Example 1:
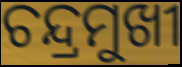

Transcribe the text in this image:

ଚନ୍ଦ୍ରମୁଖୀ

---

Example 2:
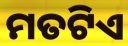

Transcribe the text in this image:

ମତଟିଏ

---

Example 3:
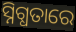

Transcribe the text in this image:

ସ୍ନିଗ୍ଧତାରେ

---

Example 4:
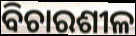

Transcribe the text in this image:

ବିଚାରଶୀଳ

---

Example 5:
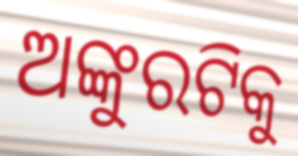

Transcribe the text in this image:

ଅଙ୍କୁରଟିକୁ